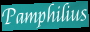
Pamphilius